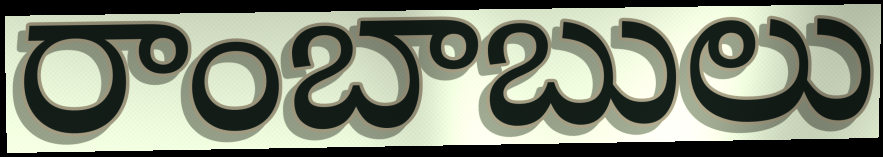
రాంబాబులు